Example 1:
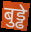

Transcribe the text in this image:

बुड्ढे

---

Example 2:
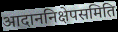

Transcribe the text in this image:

आदाननिक्षेपसमिति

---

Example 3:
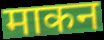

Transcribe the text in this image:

माकन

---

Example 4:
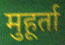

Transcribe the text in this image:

मुहूर्ता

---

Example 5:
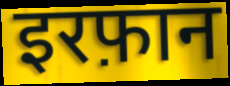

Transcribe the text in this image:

इरफ़ान